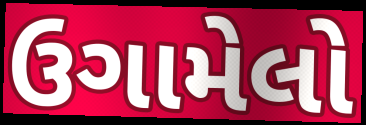
ઉગામેલો